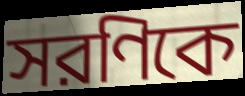
সরণিকে